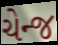
ચેન્જ